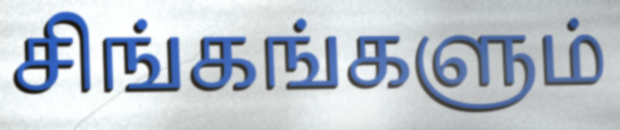
சிங்கங்களும்